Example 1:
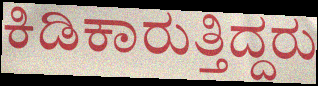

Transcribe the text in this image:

ಕಿಡಿಕಾರುತ್ತಿದ್ದರು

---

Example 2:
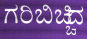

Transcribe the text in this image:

ಗರಿಬಿಚ್ಚಿದ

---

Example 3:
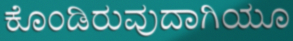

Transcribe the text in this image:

ಕೊಂಡಿರುವುದಾಗಿಯೂ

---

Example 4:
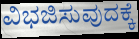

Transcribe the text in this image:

ವಿಭಜಿಸುವುದಕ್ಕೆ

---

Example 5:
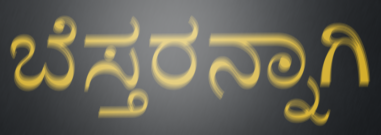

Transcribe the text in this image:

ಬೆಸ್ತರನ್ನಾಗಿ